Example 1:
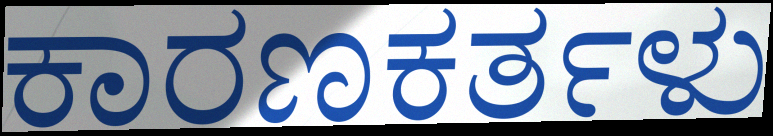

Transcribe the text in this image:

ಕಾರಣಕರ್ತಳು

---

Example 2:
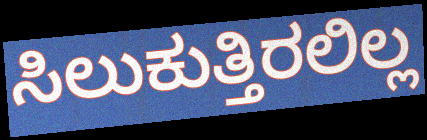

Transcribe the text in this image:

ಸಿಲುಕುತ್ತಿರಲಿಲ್ಲ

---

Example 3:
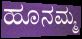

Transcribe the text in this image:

ಹೂನಮ್ಮ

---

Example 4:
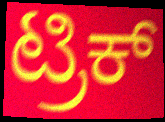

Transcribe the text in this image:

ಟ್ರಿಕ್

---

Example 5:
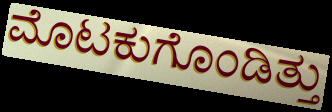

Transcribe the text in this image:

ಮೊಟಕುಗೊಂಡಿತ್ತು